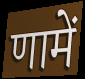
णामें